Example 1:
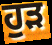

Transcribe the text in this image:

ਹੁੜ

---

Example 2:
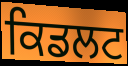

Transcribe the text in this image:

ਕਿਡਲਟ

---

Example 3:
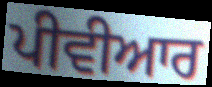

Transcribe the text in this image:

ਪੀਵੀਆਰ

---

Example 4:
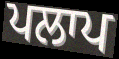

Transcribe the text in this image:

ਪਲਾਪ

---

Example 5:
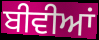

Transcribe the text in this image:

ਬੀਵੀਆਂ